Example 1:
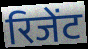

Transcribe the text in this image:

रिजेंट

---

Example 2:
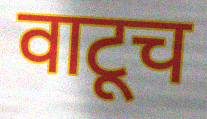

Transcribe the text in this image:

वाटूच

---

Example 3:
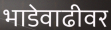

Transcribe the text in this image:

भाडेवाढीवर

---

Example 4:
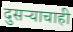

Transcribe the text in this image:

दुसऱ्याचाही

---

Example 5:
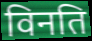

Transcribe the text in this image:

विनति